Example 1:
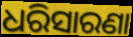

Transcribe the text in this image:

ଧରିସାରଣା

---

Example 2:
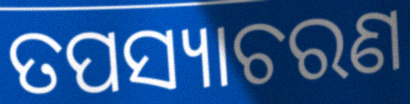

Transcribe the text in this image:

ତପସ୍ୟାଚରଣ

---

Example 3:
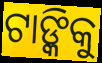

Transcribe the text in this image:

ଟାଙ୍କିକୁ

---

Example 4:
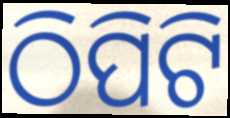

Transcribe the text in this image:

ଠିପିଟି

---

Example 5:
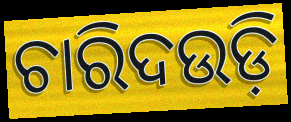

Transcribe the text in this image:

ଚାରିଦଉଡ଼ି